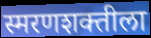
स्मरणशक्तीला